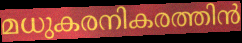
മധുകരനികരത്തിൻ